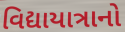
વિદ્યાયાત્રાનો